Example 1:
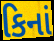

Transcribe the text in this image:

કિનાં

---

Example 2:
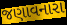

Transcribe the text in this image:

જણાવનારા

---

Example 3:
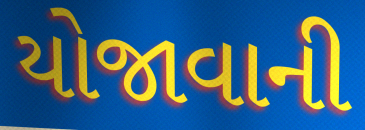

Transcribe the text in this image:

યોજાવાની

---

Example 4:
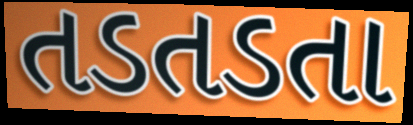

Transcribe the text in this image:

તડતડતા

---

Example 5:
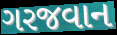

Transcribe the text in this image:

ગરજવાન